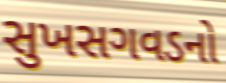
સુખસગવડનો